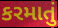
કરમાતું